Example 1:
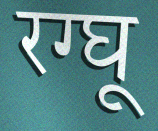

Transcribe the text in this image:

रग्घू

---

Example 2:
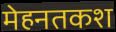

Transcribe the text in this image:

मेहनतकश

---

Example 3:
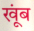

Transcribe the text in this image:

खूंब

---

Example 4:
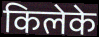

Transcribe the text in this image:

किलेके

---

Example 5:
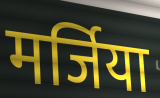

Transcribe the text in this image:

मर्जिया